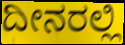
ದೀನರಲ್ಲಿ